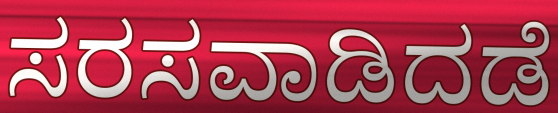
ಸರಸವಾಡಿದಡೆ